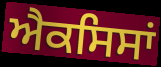
ਐਕਸਿਸਾਂ